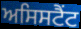
ਅਸਿਸਟੈਂਟ